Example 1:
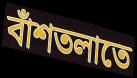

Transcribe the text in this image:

বাঁশতলাতে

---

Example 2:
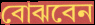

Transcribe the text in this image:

বোঝবেন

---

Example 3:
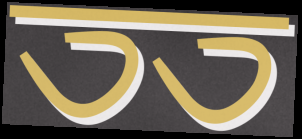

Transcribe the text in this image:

তত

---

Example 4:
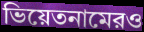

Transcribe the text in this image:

ভিয়েতনামেরও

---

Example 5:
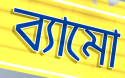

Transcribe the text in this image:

ব্যামো